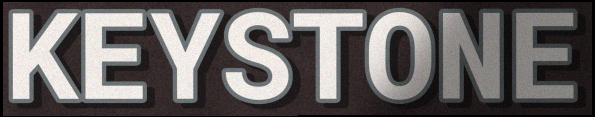
KEYSTONE